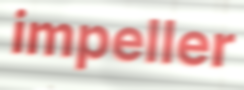
impeller